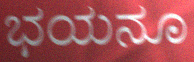
ಭಯನೂ